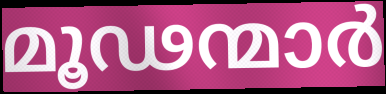
മൂഢന്മാർ